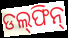
ଡଲ୍‍ଫିନ୍